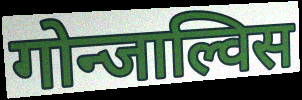
गोन्जाल्विस